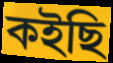
কইছি